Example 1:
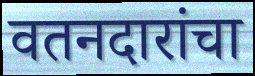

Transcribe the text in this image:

वतनदारांचा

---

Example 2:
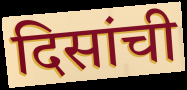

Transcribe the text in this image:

दिसांची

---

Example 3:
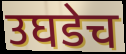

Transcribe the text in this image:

उघडेच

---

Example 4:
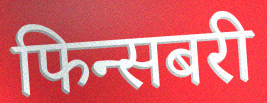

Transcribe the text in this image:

फिन्सबरी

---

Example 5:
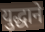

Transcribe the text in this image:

युद्धाने